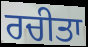
ਰਚੀਤਾ